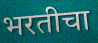
भरतीचा